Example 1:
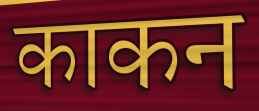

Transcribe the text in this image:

काकन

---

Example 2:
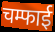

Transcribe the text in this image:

चम्फाई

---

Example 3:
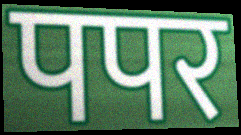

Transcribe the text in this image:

पपर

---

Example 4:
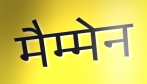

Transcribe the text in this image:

मैम्मेन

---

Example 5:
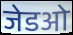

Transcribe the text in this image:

जेडओ